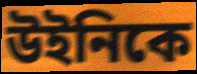
উইনিকে